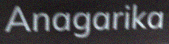
Anagarika